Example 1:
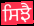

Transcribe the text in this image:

ਸਿਝੈ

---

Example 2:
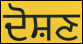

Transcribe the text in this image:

ਦੋਸ਼ਣ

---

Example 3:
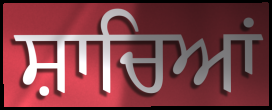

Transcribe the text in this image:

ਸ਼ਾਚਿਆਂ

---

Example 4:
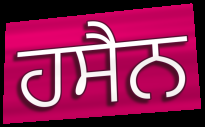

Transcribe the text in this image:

ਹਸੈਨ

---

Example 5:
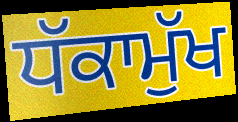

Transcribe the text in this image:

ਧੱਕਾਮੁੱਖ